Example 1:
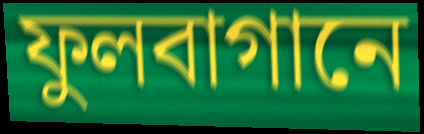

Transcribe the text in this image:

ফুলবাগানে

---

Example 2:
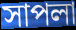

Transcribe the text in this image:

সাপলা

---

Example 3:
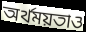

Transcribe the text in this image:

অর্থময়তাও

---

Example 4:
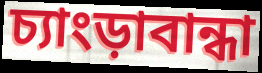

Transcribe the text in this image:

চ্যাংড়াবান্ধা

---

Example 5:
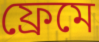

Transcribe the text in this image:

ফ্রেমে